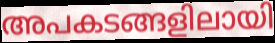
അപകടങ്ങളിലായി